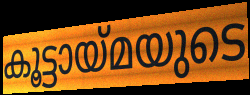
കൂട്ടായ്മയുടെ